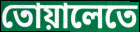
তোয়ালেতে